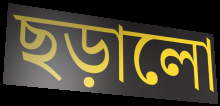
ছড়ালো